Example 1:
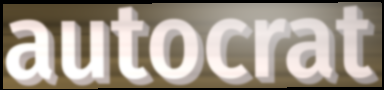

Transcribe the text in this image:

autocrat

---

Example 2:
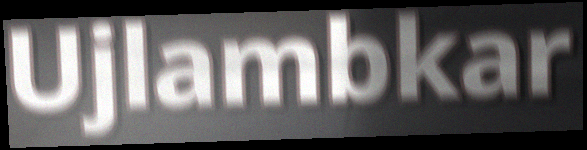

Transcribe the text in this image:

Ujlambkar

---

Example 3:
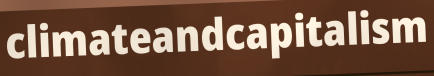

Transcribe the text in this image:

climateandcapitalism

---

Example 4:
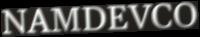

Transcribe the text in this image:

NAMDEVCO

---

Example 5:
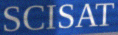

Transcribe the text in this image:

SCISAT